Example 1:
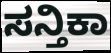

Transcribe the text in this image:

ಸನ್ತಿಕಾ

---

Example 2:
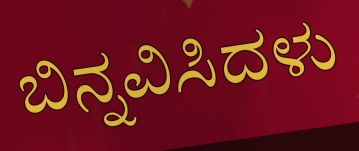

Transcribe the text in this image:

ಬಿನ್ನವಿಸಿದಳು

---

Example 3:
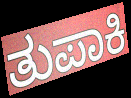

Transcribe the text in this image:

ತುಪಾಕಿ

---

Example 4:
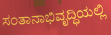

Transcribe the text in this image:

ಸಂತಾನಾಭಿವೃದ್ಧಿಯಲ್ಲಿ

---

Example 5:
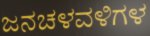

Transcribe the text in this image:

ಜನಚಳವಳಿಗಳ